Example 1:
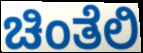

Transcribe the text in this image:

ಚಿಂತೆಲಿ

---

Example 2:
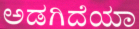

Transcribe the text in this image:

ಅಡಗಿದೆಯಾ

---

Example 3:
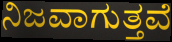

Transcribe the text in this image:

ನಿಜವಾಗುತ್ತವೆ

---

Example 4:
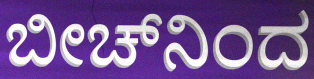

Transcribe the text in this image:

ಬೀಚ್‌ನಿಂದ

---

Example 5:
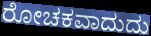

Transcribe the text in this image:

ರೋಚಕವಾದುದು